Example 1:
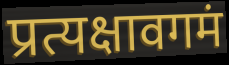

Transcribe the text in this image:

प्रत्यक्षावगमं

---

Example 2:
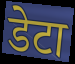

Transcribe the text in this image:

डेटा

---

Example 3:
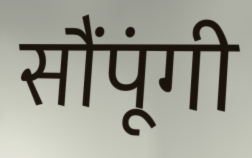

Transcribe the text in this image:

सौंपूंगी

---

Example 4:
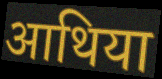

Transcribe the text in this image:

आथिया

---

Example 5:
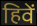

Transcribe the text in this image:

हिवें